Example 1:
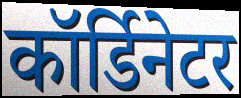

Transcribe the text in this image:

कॉर्डिनेटर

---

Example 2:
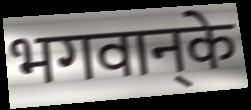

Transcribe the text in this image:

भगवान्‌के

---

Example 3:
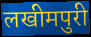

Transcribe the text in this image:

लखीमपुरी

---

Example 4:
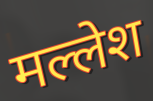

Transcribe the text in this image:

मल्लेश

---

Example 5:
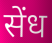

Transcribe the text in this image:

सेंध